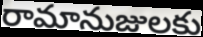
రామానుజులకు